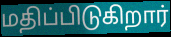
மதிப்பிடுகிறார்